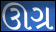
ઊગ્ર